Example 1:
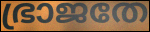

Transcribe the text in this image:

ഭ്രാജതേ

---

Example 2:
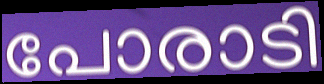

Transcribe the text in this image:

പോരാടി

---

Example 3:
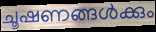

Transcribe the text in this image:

ചൂഷണങ്ങൾക്കും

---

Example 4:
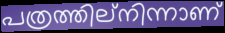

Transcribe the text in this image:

പത്രത്തില്നിന്നാണ്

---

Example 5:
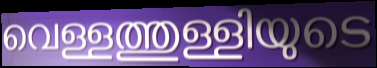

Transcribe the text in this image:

വെള്ളത്തുള്ളിയുടെ